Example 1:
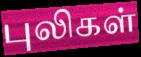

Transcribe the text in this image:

புலிகள்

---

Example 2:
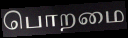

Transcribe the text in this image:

பொறமை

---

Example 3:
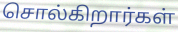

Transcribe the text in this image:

சொல்கிறார்கள்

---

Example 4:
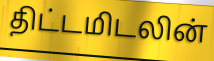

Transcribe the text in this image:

திட்டமிடலின்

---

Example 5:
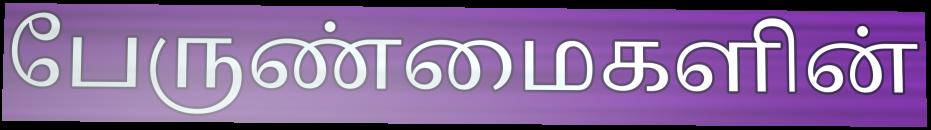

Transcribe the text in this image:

பேருண்மைகளின்